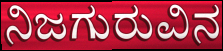
ನಿಜಗುರುವಿನ